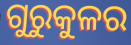
ଗୁରୁକୁଳର